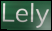
Lely